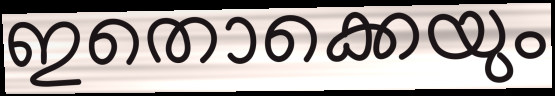
ഇതൊക്കെയും